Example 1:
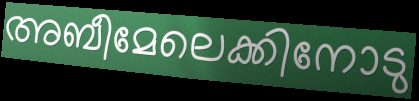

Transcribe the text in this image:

അബീമേലെക്കിനോടു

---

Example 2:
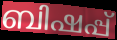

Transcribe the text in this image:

ബിഷപ്പ്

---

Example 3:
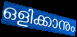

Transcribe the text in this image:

ഒളിക്കാനും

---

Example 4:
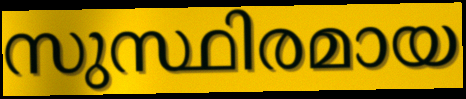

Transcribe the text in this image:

സുസ്ഥിരമായ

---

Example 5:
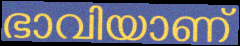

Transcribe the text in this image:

ഭാവിയാണ്